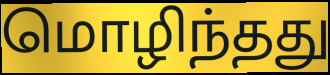
மொழிந்தது